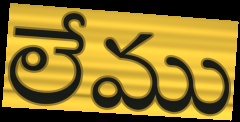
లేము